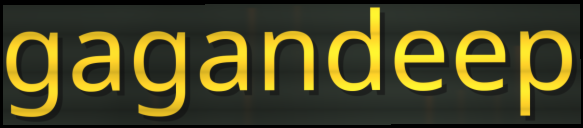
gagandeep